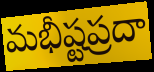
మభీష్టప్రదా